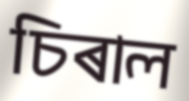
চিৰাল